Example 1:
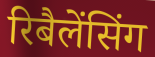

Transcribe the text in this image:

रिबैलेंसिंग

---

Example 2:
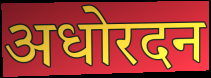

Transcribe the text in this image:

अधोरदन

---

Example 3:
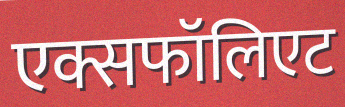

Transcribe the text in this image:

एक्सफॉलिएट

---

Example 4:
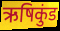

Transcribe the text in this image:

ऋषिकुंड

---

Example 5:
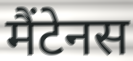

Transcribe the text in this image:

मैंटेनस